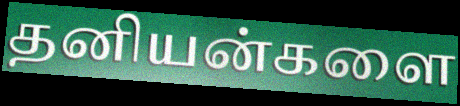
தனியன்களை